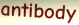
antibody